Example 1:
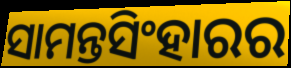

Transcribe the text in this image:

ସାମନ୍ତସିଂହାରର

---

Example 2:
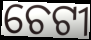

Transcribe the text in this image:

ଚେଟୀ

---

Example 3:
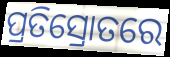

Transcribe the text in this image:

ପ୍ରତିସ୍ରୋତରେ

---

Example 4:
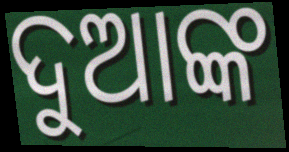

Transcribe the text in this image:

ଦୁଆଙ୍କ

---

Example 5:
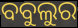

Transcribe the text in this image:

ବବୁଲୁର